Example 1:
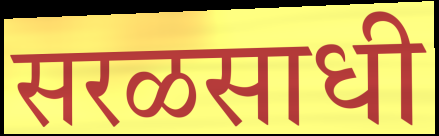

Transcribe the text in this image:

सरळसाधी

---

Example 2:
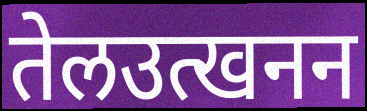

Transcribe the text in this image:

तेलउत्खनन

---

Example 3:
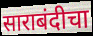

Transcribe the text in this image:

साराबंदीचा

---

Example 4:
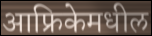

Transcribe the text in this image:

आफ्रिकेमधील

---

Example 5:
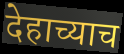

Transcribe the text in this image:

देहाच्याच